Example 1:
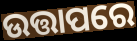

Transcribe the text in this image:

ଉତ୍ତାପରେ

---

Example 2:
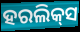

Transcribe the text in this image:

ହରଲିକ୍‍ସ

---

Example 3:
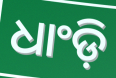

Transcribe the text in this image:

ଧାଂଡ଼ି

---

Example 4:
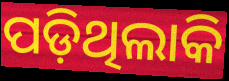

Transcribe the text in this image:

ପଡ଼ିଥିଲାକି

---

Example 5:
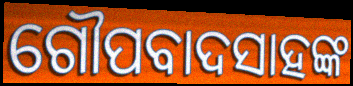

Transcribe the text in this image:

ଗୌପବାଦସାହଙ୍କ